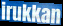
irukkan